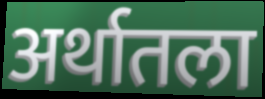
अर्थातला